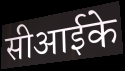
सीआईके